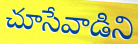
చూసేవాడిని